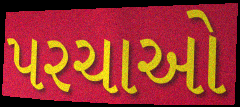
પરચાઓ